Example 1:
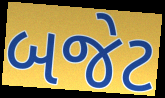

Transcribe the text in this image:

બજેટ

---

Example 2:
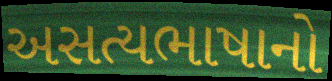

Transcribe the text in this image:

અસત્યભાષાનો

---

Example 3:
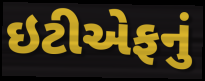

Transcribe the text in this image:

ઇટીએફનું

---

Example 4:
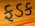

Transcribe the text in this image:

ફડક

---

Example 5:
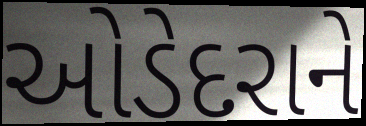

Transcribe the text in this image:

ઓડેદરાને